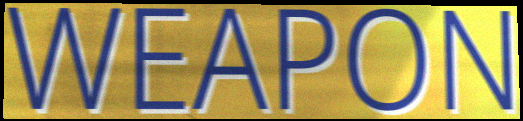
WEAPON